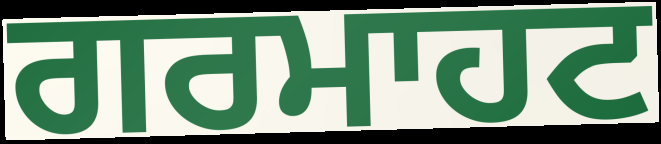
ਗਰਮਾਹਟ